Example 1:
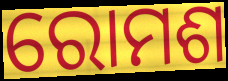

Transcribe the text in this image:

ରୋମଶ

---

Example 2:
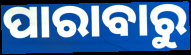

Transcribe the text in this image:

ପାରାବାରୁ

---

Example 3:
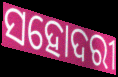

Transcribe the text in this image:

ସହୋଦରୀ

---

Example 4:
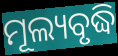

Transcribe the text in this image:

ମୂଲ୍ୟବୃଦ୍ଧି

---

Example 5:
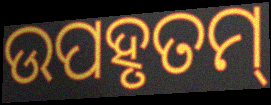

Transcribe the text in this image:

ଉପହୃତମ୍